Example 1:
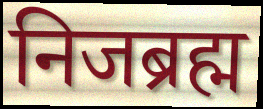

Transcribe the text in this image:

निजब्रह्म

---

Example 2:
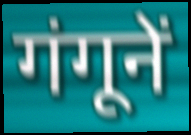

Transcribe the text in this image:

गंगूनें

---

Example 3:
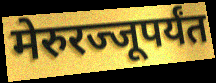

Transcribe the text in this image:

मेरुरज्जूपर्यंत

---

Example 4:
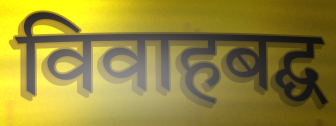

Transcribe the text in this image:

विवाहबद्घ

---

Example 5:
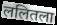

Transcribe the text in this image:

ललितला